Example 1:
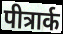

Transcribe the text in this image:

पीत्रार्क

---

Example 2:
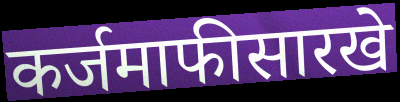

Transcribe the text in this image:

कर्जमाफीसारखे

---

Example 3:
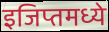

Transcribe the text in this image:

इजिप्तमध्ये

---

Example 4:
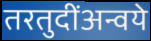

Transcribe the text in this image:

तरतुदींअन्वये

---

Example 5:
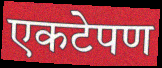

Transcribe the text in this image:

एकटेपण